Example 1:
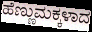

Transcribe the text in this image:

ಹೆಣ್ಣುಮಕ್ಕಳಾದ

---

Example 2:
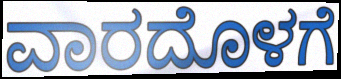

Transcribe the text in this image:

ವಾರದೊಳಗೆ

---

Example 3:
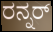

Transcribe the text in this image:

ರನ್ನರ್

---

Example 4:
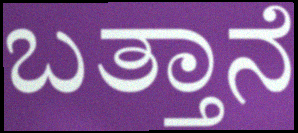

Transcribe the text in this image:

ಬತ್ತಾನೆ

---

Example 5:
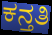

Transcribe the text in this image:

ಕನ್ತತಿ